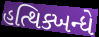
હત્થિક્ખન્ધે